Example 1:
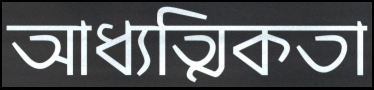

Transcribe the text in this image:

আধ্যত্মিকতা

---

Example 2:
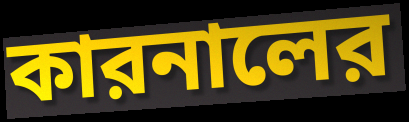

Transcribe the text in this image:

কারনালের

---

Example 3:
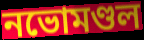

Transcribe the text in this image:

নভোমণ্ডল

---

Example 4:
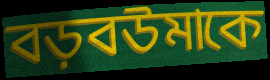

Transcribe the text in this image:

বড়বউমাকে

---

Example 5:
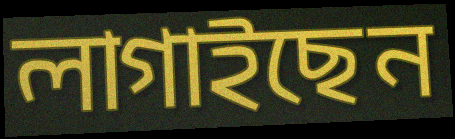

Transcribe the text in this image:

লাগাইছেন